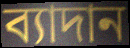
ব্যাদান